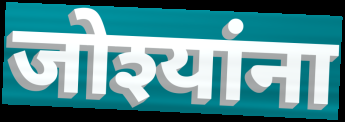
जोश्यांना